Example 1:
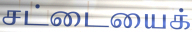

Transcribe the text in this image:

சட்டையைக்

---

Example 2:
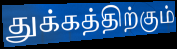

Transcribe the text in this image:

துக்கத்திற்கும்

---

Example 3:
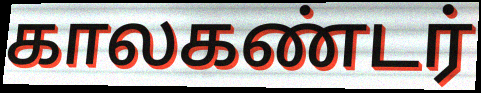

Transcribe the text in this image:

காலகண்டர்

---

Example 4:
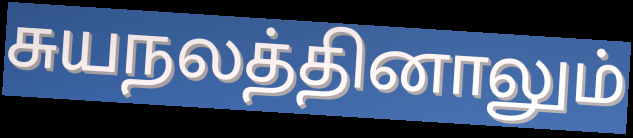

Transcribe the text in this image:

சுயநலத்தினாலும்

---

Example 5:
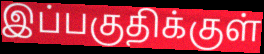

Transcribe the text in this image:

இப்பகுதிக்குள்